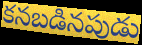
కనబడినపుడు